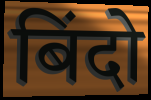
बिंदो